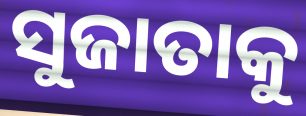
ସୁଜାତାକୁ